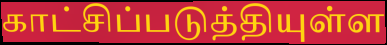
காட்சிப்படுத்தியுள்ள